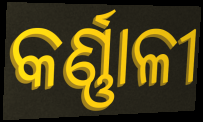
କର୍ଣ୍ଣାଳୀ